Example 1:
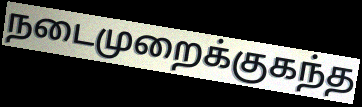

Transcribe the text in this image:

நடைமுறைக்குகந்த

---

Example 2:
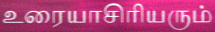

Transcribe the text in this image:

உரையாசிரியரும்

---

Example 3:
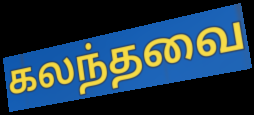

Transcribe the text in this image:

கலந்தவை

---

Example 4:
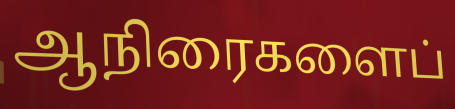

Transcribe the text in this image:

ஆநிரைகளைப்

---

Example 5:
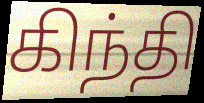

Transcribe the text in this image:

கிந்தி